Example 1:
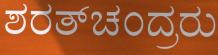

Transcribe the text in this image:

ಶರತ್‌ಚಂದ್ರರು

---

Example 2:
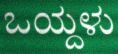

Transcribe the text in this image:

ಒಯ್ದಳು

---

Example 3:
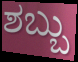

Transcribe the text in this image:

ಶಬ್ಬು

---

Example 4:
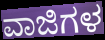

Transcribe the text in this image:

ವಾಜಿಗಳ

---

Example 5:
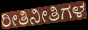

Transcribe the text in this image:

ರೀತಿನೀತಿಗಳ